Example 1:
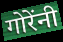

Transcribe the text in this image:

गोरेंनी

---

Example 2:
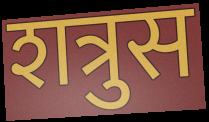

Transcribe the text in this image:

शत्रुस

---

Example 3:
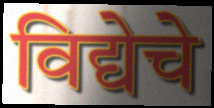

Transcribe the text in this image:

विद्येचे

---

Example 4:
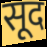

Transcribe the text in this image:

सूद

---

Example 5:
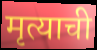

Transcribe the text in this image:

मृत्याची